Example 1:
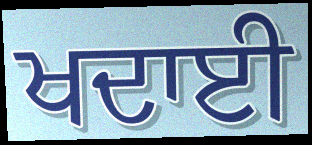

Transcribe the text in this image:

ਖਦਾਈ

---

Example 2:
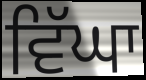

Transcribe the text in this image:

ਵਿੱਘਾ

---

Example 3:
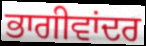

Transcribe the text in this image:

ਭਾਗੀਵਾਂਦਰ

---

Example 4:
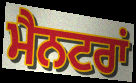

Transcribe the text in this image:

ਮੈਨਟਰਾਂ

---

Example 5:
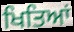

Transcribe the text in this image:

ਖਿਤਿਆਂ